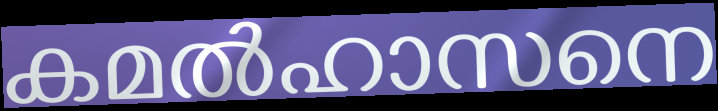
കമൽഹാസനെ